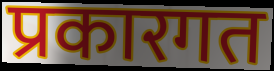
प्रकारगत